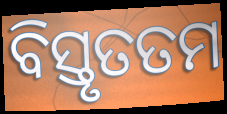
ବିସ୍ତୃତତମ